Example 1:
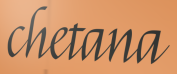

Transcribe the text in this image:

chetana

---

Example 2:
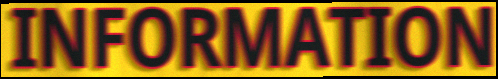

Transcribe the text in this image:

INFORMATION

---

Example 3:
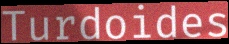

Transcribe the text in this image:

Turdoides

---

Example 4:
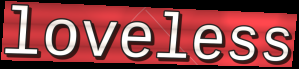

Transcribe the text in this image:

loveless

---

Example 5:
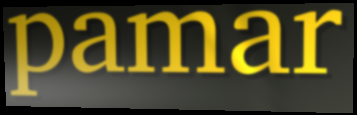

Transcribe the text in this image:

pamar